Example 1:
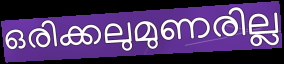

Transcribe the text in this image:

ഒരിക്കലുമുണരില്ല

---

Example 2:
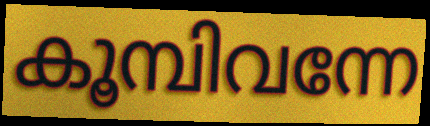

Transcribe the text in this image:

കൂമ്പിവന്നേ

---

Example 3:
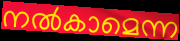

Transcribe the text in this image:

നൽകാമെന്ന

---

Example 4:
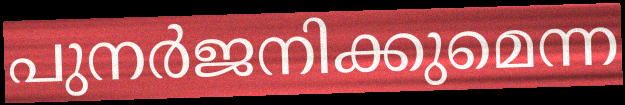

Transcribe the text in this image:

പുനർജനിക്കുമെന്ന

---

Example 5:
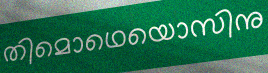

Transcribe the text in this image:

തിമൊഥെയൊസിനു